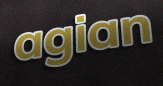
agian